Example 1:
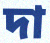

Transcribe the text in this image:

দা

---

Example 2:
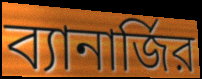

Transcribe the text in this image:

ব্যানার্জির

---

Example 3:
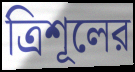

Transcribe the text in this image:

ত্রিশূলের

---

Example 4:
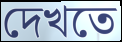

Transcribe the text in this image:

দেখতে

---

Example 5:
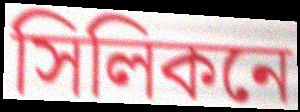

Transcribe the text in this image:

সিলিকনে